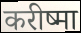
करीष्मा